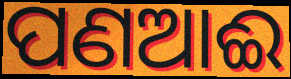
ପଣଆଈ